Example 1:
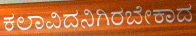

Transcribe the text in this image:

ಕಲಾವಿದನಿಗಿರಬೇಕಾದ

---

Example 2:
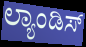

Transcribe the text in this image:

ಲ್ಯಾಂಡಿಸ್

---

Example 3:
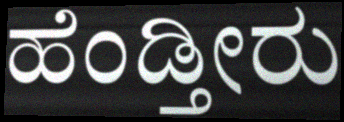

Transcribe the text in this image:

ಹೆಂಡ್ತೀರು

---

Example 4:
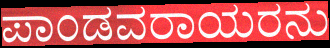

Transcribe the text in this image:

ಪಾಂಡವರಾಯರನು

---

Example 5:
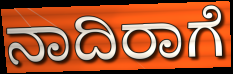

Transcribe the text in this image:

ನಾದಿರಾಗೆ